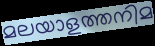
മലയാളത്തനിമ